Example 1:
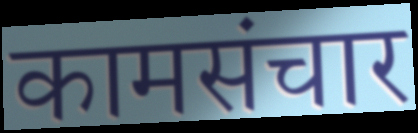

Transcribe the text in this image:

कामसंचार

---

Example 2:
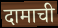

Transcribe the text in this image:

दामाची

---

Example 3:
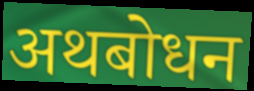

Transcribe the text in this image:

अथबोधन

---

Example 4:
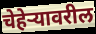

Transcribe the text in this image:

चेहेऱ्यावरील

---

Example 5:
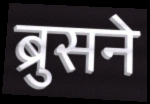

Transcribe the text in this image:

ब्रुसने